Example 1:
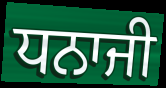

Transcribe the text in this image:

ਧਨਾਜੀ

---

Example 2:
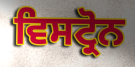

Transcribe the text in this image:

ਵਿਸਟ੍ਰੋਨ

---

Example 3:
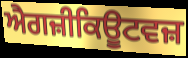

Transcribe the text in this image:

ਐਗਜ਼ੀਕਿਊਟਵਜ਼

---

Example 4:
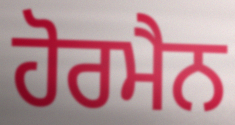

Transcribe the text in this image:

ਹੋਰਮੈਨ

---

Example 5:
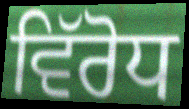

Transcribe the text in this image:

ਵਿੱਰੋਧ